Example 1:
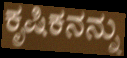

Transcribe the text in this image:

ಕೃಷಿಕನನ್ನು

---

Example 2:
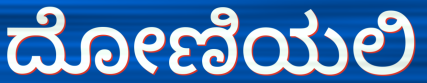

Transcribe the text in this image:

ದೋಣಿಯಲಿ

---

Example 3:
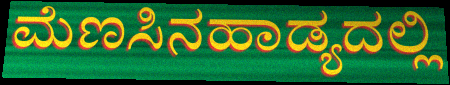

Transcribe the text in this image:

ಮೆಣಸಿನಹಾಡ್ಯದಲ್ಲಿ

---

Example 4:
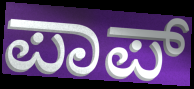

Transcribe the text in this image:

ಪಾಪ್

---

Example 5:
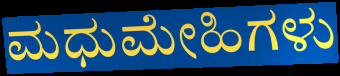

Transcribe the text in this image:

ಮಧುಮೇಹಿಗಳು